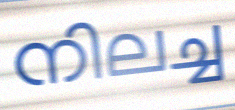
നിലച്ച